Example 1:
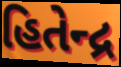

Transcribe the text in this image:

હિતેન્દ્ર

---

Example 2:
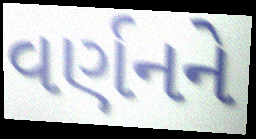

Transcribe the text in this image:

વર્ણનને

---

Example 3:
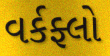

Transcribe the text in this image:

વર્કફ્લો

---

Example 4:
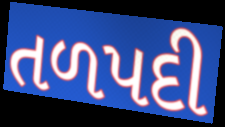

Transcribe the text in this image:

તળપદી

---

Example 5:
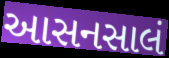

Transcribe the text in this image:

આસનસાલં